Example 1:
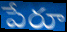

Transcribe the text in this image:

పేరూ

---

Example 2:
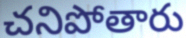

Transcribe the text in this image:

చనిపోతారు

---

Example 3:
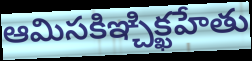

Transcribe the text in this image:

ఆమిసకిఞ్చిక్ఖహేతు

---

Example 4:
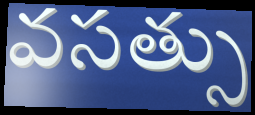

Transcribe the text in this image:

వసత్సు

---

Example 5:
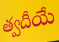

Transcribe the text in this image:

త్వదీయే